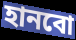
হানবো